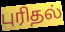
புரிதல்